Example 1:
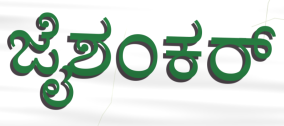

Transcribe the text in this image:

ಜೈಶಂಕರ್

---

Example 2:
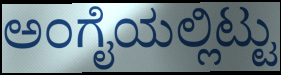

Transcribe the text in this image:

ಅಂಗೈಯಲ್ಲಿಟ್ಟು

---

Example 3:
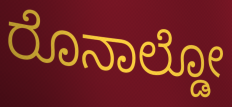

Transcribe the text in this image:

ರೊನಾಲ್ಡೋ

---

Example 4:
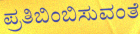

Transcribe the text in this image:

ಪ್ರತಿಬಿಂಬಿಸುವಂತೆ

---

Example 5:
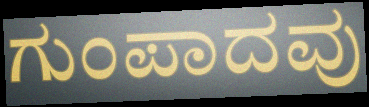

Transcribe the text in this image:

ಗುಂಪಾದವು